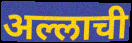
अल्लाची